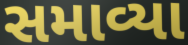
સમાવ્યા